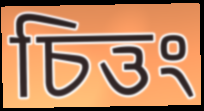
চিত্তং